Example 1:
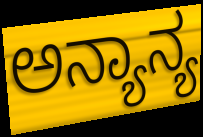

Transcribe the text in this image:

ಅನ್ಯಾನ್ಯ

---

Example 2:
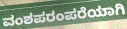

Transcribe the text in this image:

ವಂಶಪರಂಪರೆಯಾಗಿ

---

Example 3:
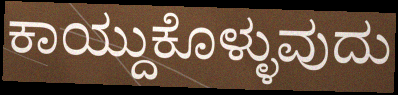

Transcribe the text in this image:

ಕಾಯ್ದುಕೊಳ್ಳುವುದು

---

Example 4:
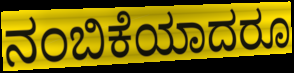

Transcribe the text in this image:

ನಂಬಿಕೆಯಾದರೂ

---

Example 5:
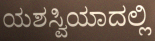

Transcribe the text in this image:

ಯಶಸ್ವಿಯಾದಲ್ಲಿ